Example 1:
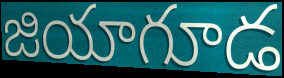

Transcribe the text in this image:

జియాగూడ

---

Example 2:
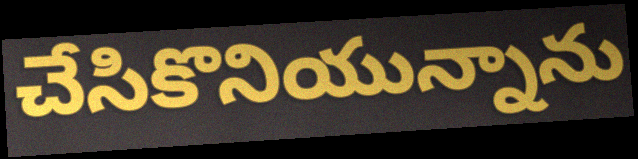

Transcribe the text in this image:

చేసికొనియున్నాను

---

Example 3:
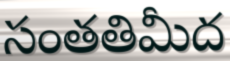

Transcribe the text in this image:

సంతతిమీద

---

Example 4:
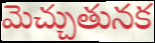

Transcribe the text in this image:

మెచ్చుతునక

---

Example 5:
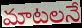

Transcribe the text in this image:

మాటలనే